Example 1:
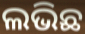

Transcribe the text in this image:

ଲଭିଛ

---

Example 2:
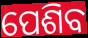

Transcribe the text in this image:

ପେଶିବ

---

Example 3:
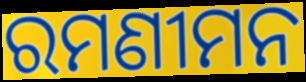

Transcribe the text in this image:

ରମଣୀମନ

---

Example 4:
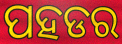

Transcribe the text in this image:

ପହଡର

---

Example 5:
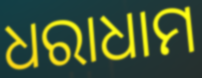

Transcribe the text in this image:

ଧରାଧାମ